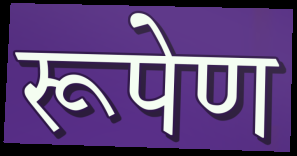
रूपेण